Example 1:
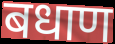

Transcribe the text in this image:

बधाण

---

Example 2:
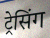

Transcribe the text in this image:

ट्रेसिंग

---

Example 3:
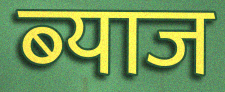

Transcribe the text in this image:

ब्‍याज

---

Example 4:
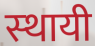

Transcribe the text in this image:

स्‍थायी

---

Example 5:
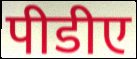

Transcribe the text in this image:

पीडीए